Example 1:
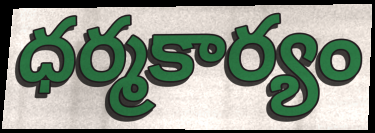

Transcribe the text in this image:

ధర్మకార్యం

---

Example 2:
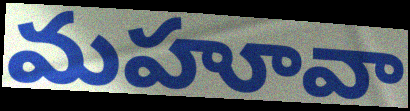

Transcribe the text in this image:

మహూవా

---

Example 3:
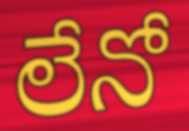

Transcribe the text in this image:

లేనో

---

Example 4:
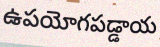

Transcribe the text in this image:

ఉపయోగపడ్డాయ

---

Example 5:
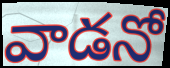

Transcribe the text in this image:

వాడనో